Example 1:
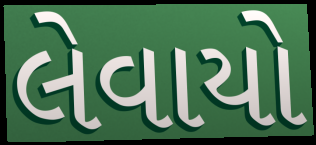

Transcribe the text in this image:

લેવાયો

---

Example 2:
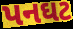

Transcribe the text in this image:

પનઘટ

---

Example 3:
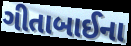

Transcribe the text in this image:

ગીતાબાઈના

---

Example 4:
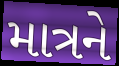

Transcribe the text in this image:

માત્રને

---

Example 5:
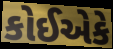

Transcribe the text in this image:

કોઈએકે